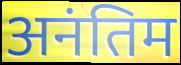
अनंतिम